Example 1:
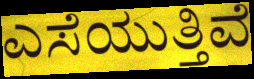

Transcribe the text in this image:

ಎಸೆಯುತ್ತಿವೆ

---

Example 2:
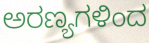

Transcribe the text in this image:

ಅರಣ್ಯಗಳಿಂದ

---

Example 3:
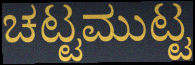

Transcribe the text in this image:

ಚಟ್ಟಮುಟ್ಟ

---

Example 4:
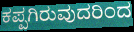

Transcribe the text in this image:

ಕಪ್ಪಗಿರುವುದರಿಂದ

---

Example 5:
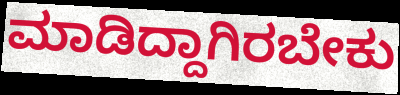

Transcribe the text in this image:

ಮಾಡಿದ್ದಾಗಿರಬೇಕು